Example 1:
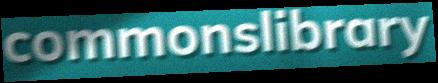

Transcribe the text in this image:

commonslibrary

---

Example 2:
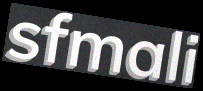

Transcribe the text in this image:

sfmali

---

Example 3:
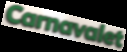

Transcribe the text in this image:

Carnavalet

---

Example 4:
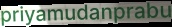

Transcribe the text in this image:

priyamudanprabu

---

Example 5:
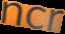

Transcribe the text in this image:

ncr